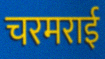
चरमराई